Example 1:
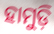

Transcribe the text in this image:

ହାମୁଡ଼ି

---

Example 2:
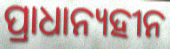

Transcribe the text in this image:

ପ୍ରାଧାନ୍ୟହୀନ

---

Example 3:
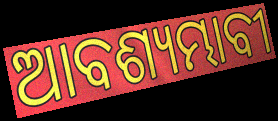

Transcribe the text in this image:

ଆବଶ୍ୟମ୍ଭାବୀ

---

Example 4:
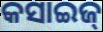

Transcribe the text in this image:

କସାଇଜ୍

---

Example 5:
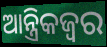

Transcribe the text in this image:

ଆନ୍ତ୍ରିକଜ୍ଵର